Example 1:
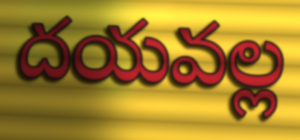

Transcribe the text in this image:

దయవల్ల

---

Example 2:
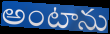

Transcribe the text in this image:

అంటాను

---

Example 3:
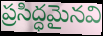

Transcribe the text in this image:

ప్రసిద్ధమైనవి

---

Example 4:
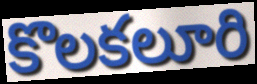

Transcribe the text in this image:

కొలకలూరి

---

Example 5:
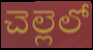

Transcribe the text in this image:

చెల్లెలో